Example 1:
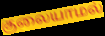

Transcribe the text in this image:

குலையாமல்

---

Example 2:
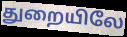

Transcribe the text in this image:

துறையிலே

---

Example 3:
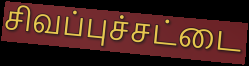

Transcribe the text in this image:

சிவப்புச்சட்டை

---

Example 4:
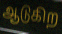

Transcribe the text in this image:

ஆடுகிற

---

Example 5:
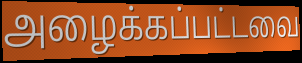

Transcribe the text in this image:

அழைக்கப்பட்டவை